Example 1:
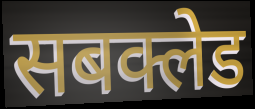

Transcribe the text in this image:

सबक्लेड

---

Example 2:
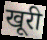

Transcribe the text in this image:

खूरी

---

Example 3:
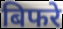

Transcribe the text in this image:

बिफरे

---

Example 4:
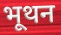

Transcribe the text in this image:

भूथन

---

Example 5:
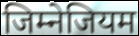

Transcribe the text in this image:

जिम्नेजियम